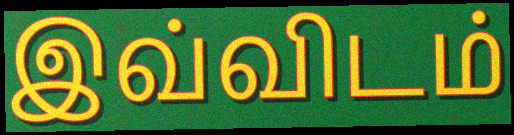
இவ்விடம்